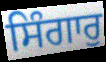
ਸਿੰਗਾਰੁ